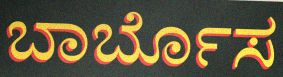
ಬಾರ್ಬೊಸ